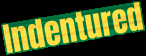
Indentured